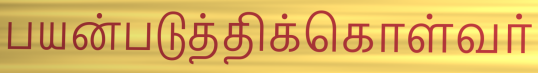
பயன்படுத்திக்கொள்வர்